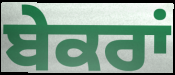
ਬੇਕਰਾਂ